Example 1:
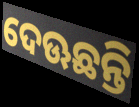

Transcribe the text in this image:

ଦେଊଛନ୍ତି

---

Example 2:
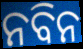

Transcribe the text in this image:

ନବିନ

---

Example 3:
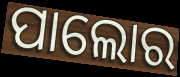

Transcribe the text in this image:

ପାଲୋର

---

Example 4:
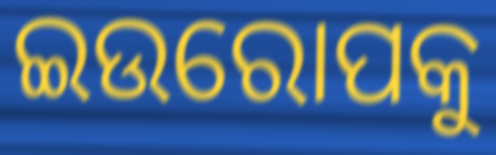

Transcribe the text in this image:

ଇଉରୋପକୁ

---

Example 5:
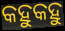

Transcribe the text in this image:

କହୁକହୁ